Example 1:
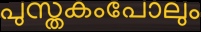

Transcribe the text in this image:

പുസ്തകംപോലും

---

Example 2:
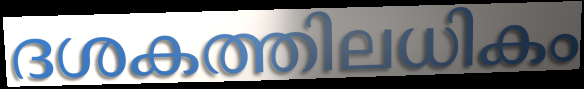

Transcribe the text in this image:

ദശകത്തിലധികം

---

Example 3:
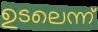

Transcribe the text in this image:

ഉടലെന്ന്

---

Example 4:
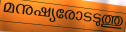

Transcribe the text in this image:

മനുഷ്യരോടടുത്തു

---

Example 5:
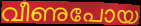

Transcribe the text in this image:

വീണുപോയ